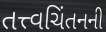
તત્ત્વચિંતનની